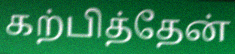
கற்பித்தேன்